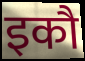
इकौ